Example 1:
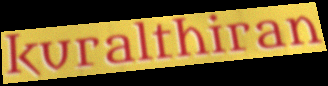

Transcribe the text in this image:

kuralthiran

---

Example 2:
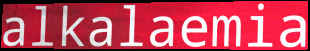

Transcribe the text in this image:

alkalaemia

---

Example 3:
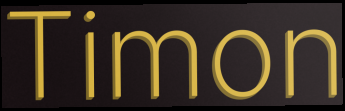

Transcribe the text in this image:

Timon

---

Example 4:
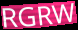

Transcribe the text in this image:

RGRW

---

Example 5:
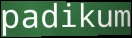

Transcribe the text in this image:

padikum